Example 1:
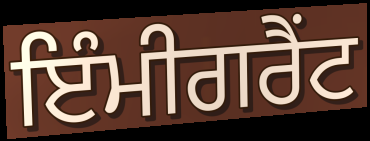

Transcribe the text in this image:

ਇੰਮੀਗਰੈਂਟ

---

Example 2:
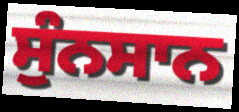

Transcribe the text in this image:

ਸੁੰਨਸਾਨ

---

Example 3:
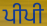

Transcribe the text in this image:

ਪੀਪੀ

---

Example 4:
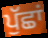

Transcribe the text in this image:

ਪੁੱਛਾਂ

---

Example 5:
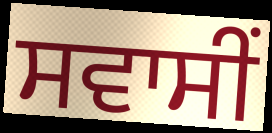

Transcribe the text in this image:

ਸਵਾਸੀਂ